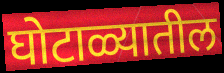
घोटाळ्यातील